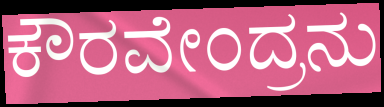
ಕೌರವೇಂದ್ರನು